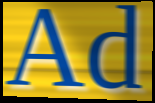
Ad